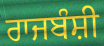
ਰਾਜਬੰਸ਼ੀ